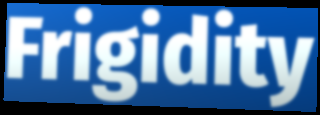
Frigidity